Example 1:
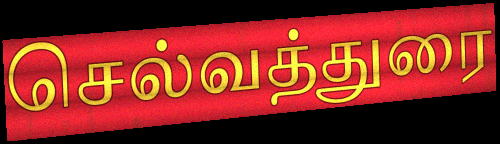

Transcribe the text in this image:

செல்வத்துரை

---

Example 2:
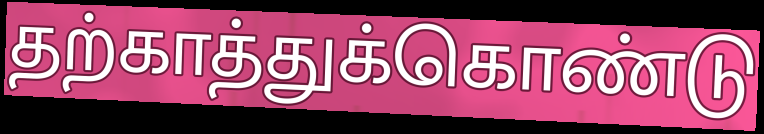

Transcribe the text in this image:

தற்காத்துக்கொண்டு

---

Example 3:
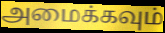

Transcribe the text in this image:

அமைக்கவும்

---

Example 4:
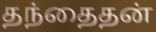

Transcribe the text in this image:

தந்தைதன்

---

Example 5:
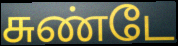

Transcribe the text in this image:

சுண்டே